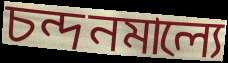
চন্দনমাল্যে